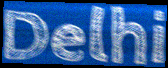
Delhi